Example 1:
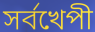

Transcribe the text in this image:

সর্বখেপী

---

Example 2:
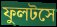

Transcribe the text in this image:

ফুলটসে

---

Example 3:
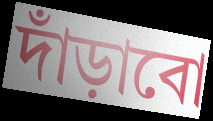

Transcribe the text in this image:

দাঁড়াবো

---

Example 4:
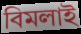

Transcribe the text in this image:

বিমলাই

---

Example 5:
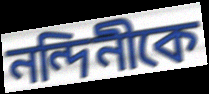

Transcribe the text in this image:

নন্দিনীকে